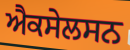
ਐਕਸੇਲਸਨ